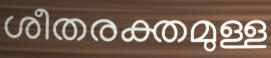
ശീതരക്തമുള്ള